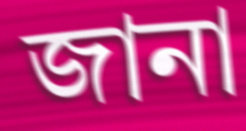
জানা